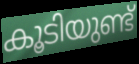
കൂടിയുണ്ട്